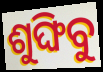
ଶୁଙ୍ଘିବୁ